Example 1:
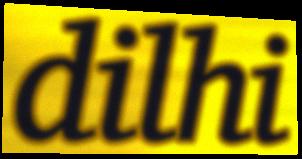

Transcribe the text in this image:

dilhi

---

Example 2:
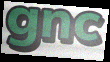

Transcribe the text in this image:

gnc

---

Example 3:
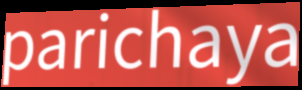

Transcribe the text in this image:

parichaya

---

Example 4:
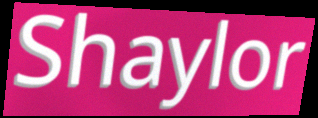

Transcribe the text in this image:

Shaylor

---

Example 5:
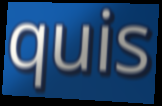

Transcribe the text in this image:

quis